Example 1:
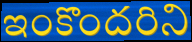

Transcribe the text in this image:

ఇంకొందరిని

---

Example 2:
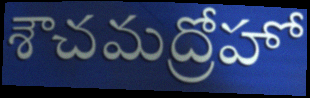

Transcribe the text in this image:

శౌచమద్రోహో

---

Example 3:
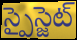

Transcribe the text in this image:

స్పైస్జెట్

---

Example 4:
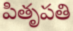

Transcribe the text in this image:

పితృపతి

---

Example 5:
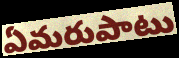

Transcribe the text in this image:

ఏమరుపాటు